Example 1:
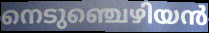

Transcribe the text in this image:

നെടുഞ്ചെഴിയൻ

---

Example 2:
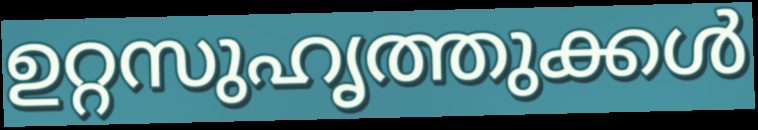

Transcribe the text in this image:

ഉറ്റസുഹൃത്തുക്കൾ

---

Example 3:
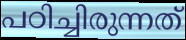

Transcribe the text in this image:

പഠിച്ചിരുന്നത്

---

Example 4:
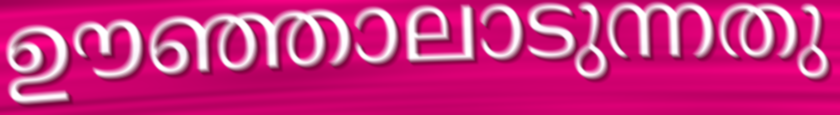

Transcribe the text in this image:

ഊഞ്ഞാലാടുന്നതു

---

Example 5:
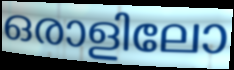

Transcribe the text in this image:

ഒരാളിലോ